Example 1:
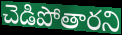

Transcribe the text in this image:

చెడిపోతారని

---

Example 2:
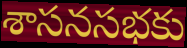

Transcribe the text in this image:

శాసనసభకు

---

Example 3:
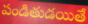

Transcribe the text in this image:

పండితుడయితే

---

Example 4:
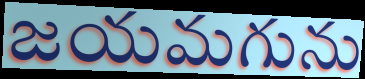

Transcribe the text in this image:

జయమగును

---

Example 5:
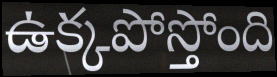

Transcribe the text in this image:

ఉక్కపోస్తోంది